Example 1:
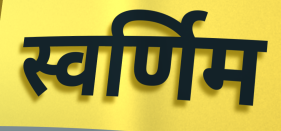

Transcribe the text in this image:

स्वर्णिम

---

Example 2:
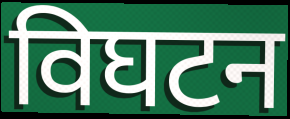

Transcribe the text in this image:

विघटन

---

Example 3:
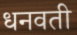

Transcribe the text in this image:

धनवती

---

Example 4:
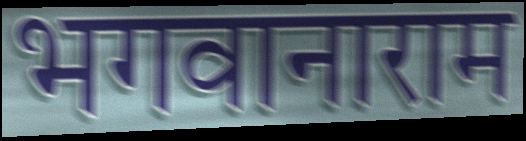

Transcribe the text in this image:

भगवानाराम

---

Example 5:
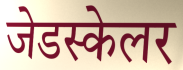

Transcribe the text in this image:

जेडस्केलर